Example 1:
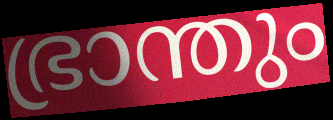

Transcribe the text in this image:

ഭ്രാന്തും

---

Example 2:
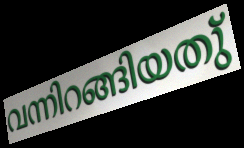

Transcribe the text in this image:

വന്നിറങ്ങിയതു്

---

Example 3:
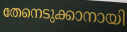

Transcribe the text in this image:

തേനെടുക്കാനായി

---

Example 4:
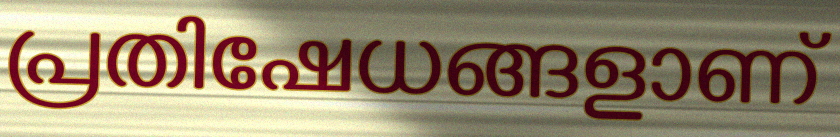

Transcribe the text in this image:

പ്രതിഷേധങ്ങളാണ്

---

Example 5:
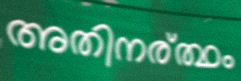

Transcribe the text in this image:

അതിനര്ത്ഥം